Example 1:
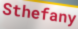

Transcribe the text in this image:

Sthefany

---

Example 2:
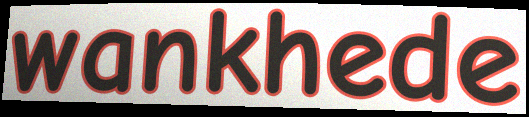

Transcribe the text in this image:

wankhede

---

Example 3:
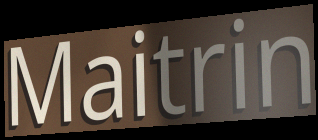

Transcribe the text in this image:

Maitrin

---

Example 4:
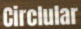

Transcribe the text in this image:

Circlular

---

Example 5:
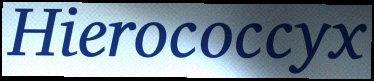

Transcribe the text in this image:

Hierococcyx